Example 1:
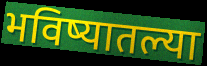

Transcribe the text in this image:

भविष्यातल्या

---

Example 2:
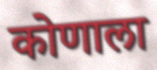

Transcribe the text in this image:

कोणाला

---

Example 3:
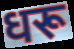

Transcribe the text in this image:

धरू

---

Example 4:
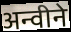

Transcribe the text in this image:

अन्वीने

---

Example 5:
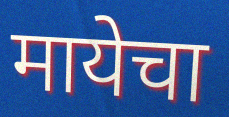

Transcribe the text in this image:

मायेचा